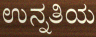
ಉನ್ನತಿಯ